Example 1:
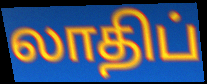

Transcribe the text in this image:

லாதிப்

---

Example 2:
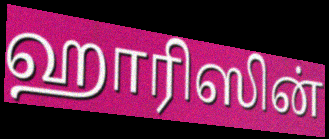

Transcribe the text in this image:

ஹாரிஸின்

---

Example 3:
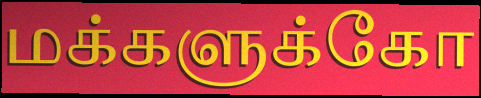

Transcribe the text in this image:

மக்களுக்கோ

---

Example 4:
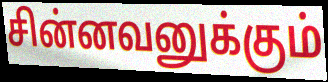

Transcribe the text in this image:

சின்னவனுக்கும்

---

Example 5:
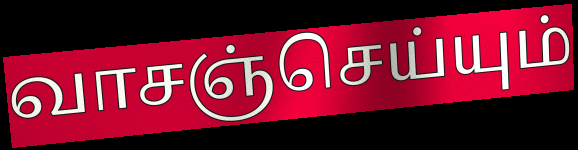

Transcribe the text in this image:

வாசஞ்செய்யும்